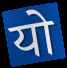
यो